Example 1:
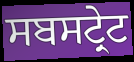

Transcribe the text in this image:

ਸਬਸਟ੍ਰੇਟ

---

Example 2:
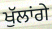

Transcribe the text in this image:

ਖੁੱਲਾਂਗੇ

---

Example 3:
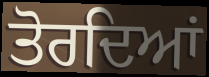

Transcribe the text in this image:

ਤੋਰਦਿਆਂ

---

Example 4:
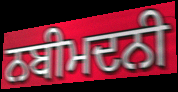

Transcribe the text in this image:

ਨਬੀਮਦਨੀ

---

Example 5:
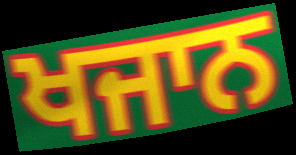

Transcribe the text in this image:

ਖਜਾਨ